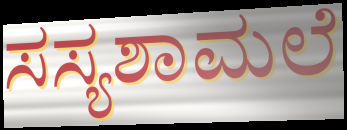
ಸಸ್ಯಶಾಮಲೆ